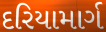
દરિયામાર્ગ